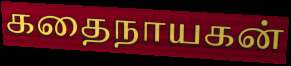
கதைநாயகன்